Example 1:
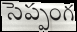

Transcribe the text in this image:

సెప్పంగ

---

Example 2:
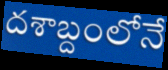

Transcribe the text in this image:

దశాబ్దంలోనే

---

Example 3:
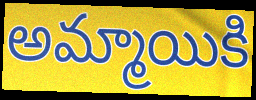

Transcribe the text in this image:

అమ్మాయికి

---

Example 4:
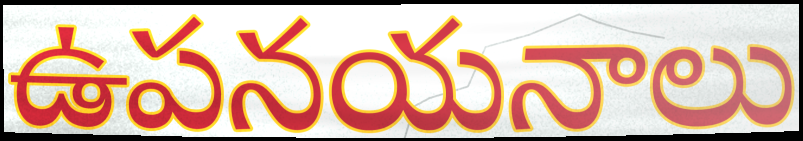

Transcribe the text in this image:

ఉపనయనాలు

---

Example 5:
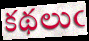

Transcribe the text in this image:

కథలుఁ